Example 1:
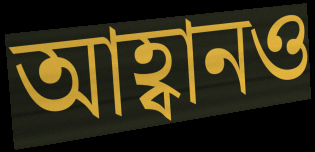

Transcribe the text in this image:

আহ্বানও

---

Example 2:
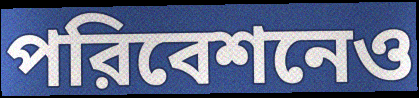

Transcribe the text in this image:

পরিবেশনেও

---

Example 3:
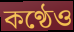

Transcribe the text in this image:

কণ্ঠেও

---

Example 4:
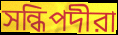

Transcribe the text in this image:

সন্ধিপদীরা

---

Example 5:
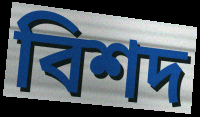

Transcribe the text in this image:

বিশদ